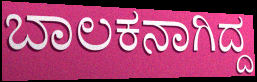
ಬಾಲಕನಾಗಿದ್ದ